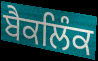
ਬੈਕਲਿੰਕ